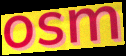
osm